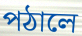
পঠালে